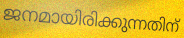
ജനമായിരിക്കുന്നതിന്